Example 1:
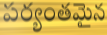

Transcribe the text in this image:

పర్యంతమైన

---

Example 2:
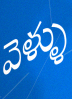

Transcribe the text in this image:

వెళ్ళు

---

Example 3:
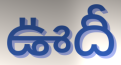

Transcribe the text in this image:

ఊదీ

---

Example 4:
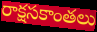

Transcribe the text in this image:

రాక్షసకాంతలు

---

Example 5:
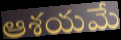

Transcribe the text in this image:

ఆశయమే